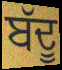
ਬੱਦੂ